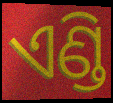
ଏଣ୍ଡି